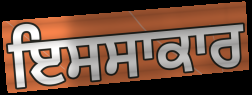
ਇਸਸਾਕਾਰ